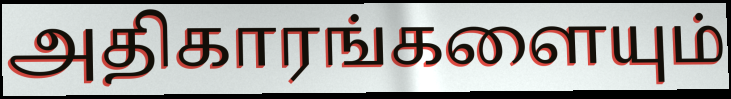
அதிகாரங்களையும்